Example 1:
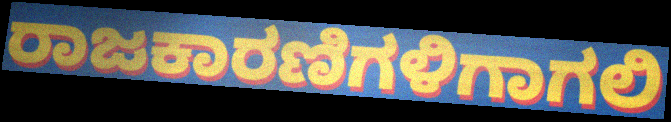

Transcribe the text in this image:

ರಾಜಕಾರಣಿಗಳಿಗಾಗಲಿ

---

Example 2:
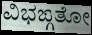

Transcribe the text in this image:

ವಿಭಙ್ಗತೋ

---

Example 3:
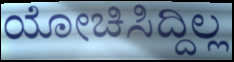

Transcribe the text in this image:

ಯೋಚಿಸಿದ್ದಿಲ್ಲ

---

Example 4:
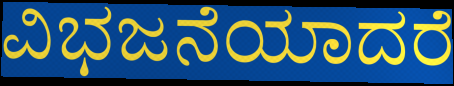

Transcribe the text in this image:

ವಿಭಜನೆಯಾದರೆ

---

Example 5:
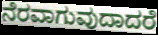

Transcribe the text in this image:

ನೆರವಾಗುವುದಾದರೆ